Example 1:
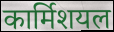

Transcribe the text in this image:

कार्मिशयल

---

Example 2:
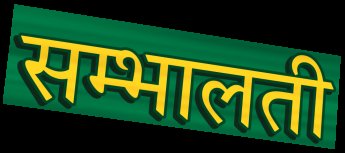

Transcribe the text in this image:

सम्भालती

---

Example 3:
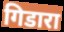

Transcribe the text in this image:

गिडारा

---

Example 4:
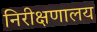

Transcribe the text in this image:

निरीक्षणालय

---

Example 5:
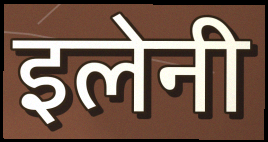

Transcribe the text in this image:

इलेनी